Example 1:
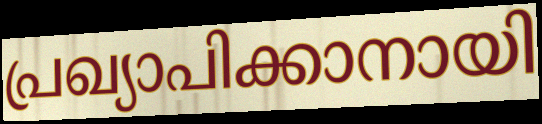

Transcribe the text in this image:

പ്രഖ്യാപിക്കാനായി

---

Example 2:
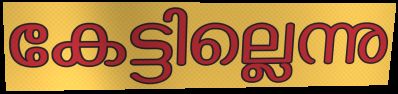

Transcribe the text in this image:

കേട്ടില്ലെന്നു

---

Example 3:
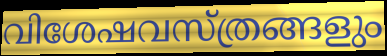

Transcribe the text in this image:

വിശേഷവസ്ത്രങ്ങളും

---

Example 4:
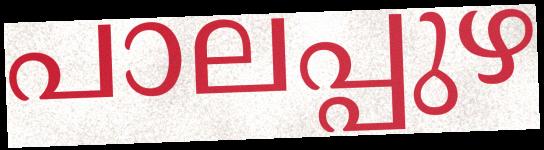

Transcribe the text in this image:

പാലപ്പുഴ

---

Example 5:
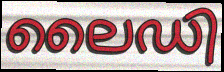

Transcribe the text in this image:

ലൈഡി